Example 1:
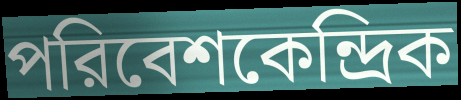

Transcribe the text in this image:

পরিবেশকেন্দ্রিক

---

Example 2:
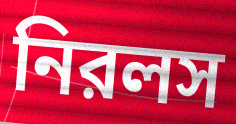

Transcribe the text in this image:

নিরলস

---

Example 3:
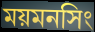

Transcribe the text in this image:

ময়মনসিং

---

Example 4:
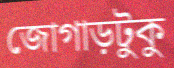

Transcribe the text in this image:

জোগাড়টুকু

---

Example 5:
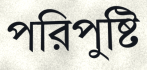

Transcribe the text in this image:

পরিপুষ্টি